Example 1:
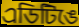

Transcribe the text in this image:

এডিটিঙে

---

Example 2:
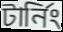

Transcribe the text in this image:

টার্নিং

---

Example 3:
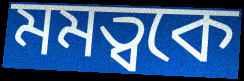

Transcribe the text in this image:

মমত্বকে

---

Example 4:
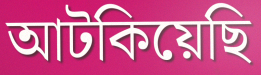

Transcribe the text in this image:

আটকিয়েছি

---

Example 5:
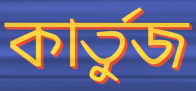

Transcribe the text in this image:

কার্তুজ